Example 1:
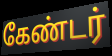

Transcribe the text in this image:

கேண்டர்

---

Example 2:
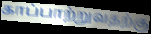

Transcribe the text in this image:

காப்பாற்றுவதற்கு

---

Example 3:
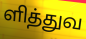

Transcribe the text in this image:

ளித்துவ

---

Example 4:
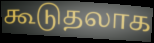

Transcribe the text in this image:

கூடுதலாக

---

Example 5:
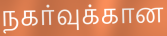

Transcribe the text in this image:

நகர்வுக்கான